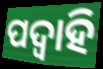
ପଦ୍ଵାହି